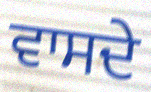
ਵਾਸਦੇ